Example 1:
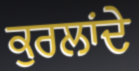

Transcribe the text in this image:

ਕੁਰਲਾਂਦੇ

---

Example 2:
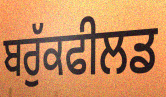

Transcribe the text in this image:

ਬਰੁੱਕਫੀਲਡ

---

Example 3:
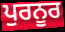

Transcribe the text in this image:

ਪੁਰਨੂਰ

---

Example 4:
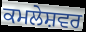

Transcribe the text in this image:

ਕਮਲੇਸ਼ਵਰ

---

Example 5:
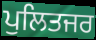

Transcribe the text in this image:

ਪੁਲਿਤਜਰ